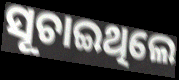
ସୂଚାଇଥିଲେ